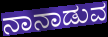
ನಾನಾಡುವ